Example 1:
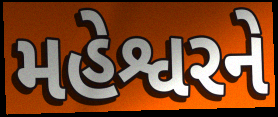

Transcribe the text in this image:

મહેશ્વરને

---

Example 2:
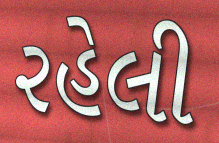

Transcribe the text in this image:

રહેલી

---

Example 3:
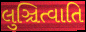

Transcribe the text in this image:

લુઞ્ચિત્વાતિ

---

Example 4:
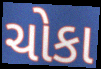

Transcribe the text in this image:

ચોકા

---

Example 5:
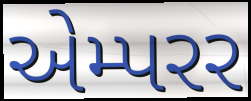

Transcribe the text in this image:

એમ્પરર